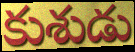
కుశుడు